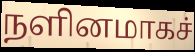
நளினமாகச்